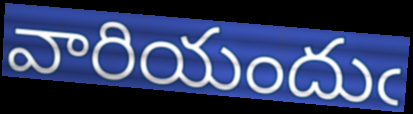
వారియందుఁ